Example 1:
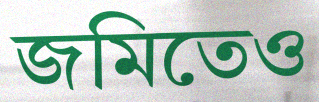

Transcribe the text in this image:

জমিতেও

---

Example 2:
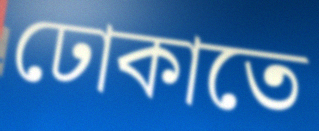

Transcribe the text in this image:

ঢোকাতে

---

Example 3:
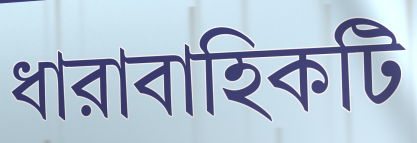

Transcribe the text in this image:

ধারাবাহিকটি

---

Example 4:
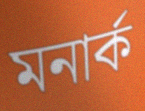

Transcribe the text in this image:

মনার্ক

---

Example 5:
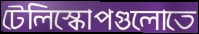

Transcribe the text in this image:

টেলিস্কোপগুলোতে